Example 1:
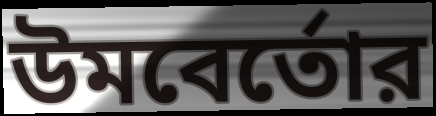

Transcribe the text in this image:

উমবের্তোর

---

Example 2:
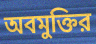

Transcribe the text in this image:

অবমুক্তির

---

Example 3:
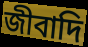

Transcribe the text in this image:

জীবাদি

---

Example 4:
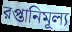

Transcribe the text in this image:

রপ্তানিমূল্য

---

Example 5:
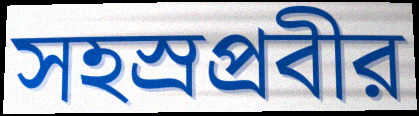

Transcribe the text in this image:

সহস্রপ্রবীর